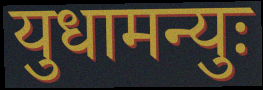
युधामन्युः